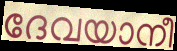
ദേവയാനീ